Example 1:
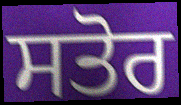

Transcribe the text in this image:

ਸਤੋਰ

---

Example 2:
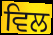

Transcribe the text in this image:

ਵਿਲ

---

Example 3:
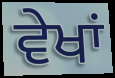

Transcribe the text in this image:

ਵੇਖਾਂ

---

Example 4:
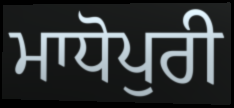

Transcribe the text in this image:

ਮਾਧੋਪੁਰੀ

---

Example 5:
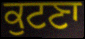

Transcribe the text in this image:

ਕੁਟਣਾ